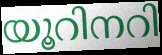
യൂറിനറി